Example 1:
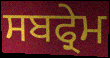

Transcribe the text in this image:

ਸਬਫ੍ਰੇਮ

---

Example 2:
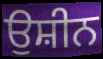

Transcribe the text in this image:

ਉਸ਼ੀਨ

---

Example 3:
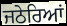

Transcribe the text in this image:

ਜਠੇਰਿਆਂ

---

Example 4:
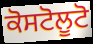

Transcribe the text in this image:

ਕੋਸਟੋਲੂਟੋ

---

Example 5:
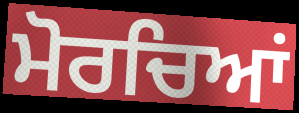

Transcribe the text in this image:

ਮੋਰਚਿਆਂ